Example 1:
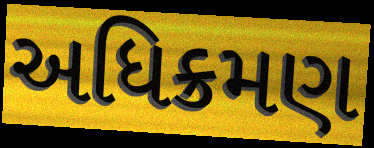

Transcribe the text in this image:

અધિક્રમણ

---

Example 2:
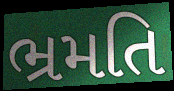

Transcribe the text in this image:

ભ્રમતિ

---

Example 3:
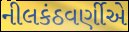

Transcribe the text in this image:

નીલકંઠવર્ણીએ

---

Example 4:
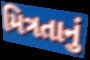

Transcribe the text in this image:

મિત્રતાનું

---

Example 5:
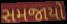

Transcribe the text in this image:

સમજાયો